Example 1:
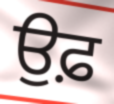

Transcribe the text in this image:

ਉਫ਼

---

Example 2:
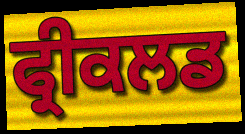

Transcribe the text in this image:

ਫ੍ਰੀਕਲਡ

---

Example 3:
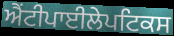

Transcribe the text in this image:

ਐਂਟੀਪਾਈਲੇਪਟਿਕਸ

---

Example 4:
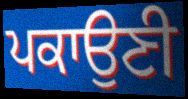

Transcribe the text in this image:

ਪਕਾਉਣੀ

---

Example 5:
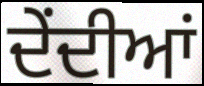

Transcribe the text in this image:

ਦੇਂਦੀਆਂ